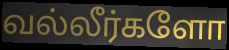
வல்லீர்களோ